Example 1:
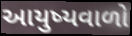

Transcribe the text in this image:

આયુષ્યવાળો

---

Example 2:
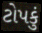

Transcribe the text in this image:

ટોપકું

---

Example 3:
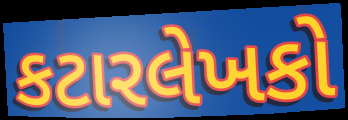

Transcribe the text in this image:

કટારલેખકો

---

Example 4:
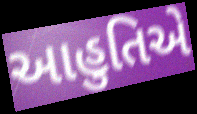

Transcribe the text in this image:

આહુતિએ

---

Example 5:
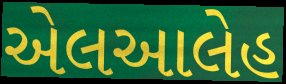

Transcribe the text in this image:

એલઆલેહ